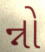
ન્નો